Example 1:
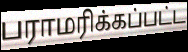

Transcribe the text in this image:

பராமரிக்கப்பட்ட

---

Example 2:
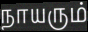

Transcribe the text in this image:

நாயரும்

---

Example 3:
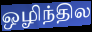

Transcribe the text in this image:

ஒழிந்தில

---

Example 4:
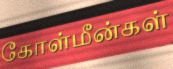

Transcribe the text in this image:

கோள்மீன்கள்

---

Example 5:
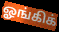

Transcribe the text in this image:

ஓங்கிக்